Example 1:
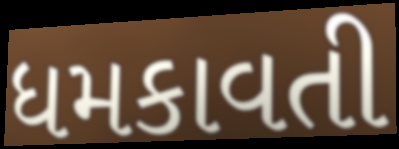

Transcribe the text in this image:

ધમકાવતી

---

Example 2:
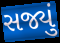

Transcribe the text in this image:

સજ્યું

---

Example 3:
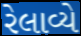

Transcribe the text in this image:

રેલાવ્યે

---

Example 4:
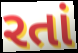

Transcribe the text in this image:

રતાં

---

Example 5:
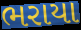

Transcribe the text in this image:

ભરાયા